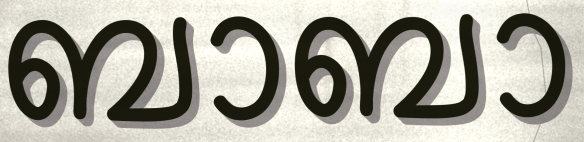
ബാബാ